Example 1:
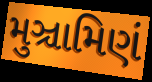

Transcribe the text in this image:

મુઞ્ચામિણં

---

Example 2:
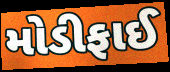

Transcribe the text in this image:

મોડીફાઈ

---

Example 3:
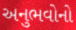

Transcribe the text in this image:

અનુભવોનો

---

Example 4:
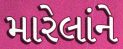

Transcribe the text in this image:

મારેલાંને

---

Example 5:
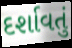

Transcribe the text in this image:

દર્શાવતું